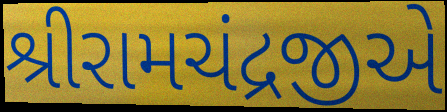
શ્રીરામચંદ્રજીએ